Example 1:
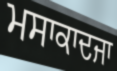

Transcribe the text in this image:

ਮਸਾਕਾਦਜਾ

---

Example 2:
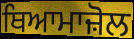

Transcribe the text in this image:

ਥਿਆਮਾਜ਼ੋਲ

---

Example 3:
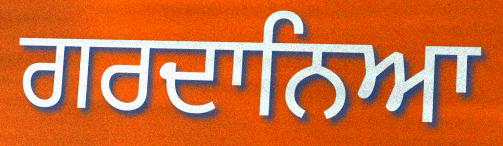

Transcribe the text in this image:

ਗਰਦਾਨਿਆ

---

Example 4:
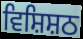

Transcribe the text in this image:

ਵਿਸ਼ਿਸ਼ਠ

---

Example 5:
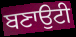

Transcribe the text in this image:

ਬਣਾਉਟੀ